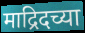
माद्रिदच्या